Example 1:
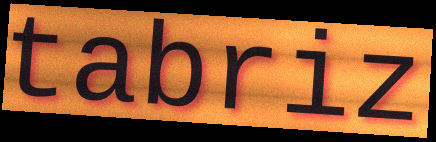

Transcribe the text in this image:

tabriz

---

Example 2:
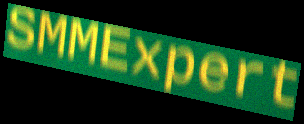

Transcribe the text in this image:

SMMExpert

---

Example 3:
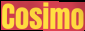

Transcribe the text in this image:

Cosimo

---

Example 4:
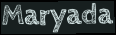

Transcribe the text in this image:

Maryada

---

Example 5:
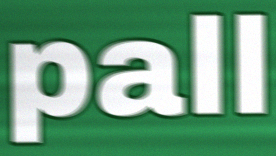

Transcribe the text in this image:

pall